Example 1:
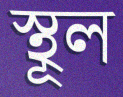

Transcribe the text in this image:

স্থূল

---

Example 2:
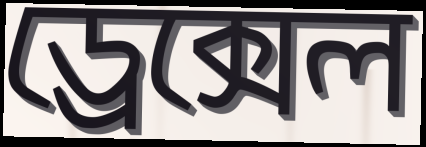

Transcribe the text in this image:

ড্রেক্সেল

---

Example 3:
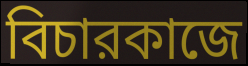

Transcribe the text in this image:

বিচারকাজে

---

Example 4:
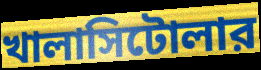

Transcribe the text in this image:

খালাসিটোলার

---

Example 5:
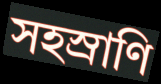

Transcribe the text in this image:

সহস্রাণি